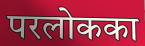
परलोकका